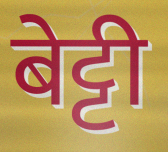
बेट्टी